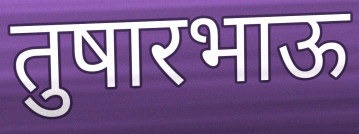
तुषारभाऊ